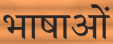
भाषाओें